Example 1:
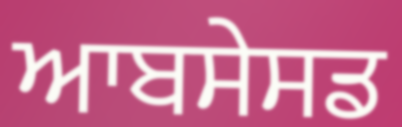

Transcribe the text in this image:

ਆਬਸੇਸਡ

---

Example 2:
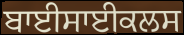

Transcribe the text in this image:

ਬਾਈਸਾਈਕਲਸ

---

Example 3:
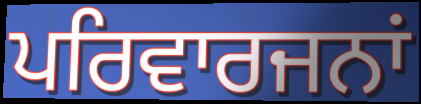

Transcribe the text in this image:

ਪਰਿਵਾਰਜਨਾਂ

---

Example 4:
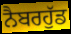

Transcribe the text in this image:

ਨੈਬਰਹੁੱਡ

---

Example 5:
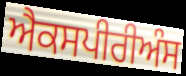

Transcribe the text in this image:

ਐਕਸਪੀਰੀਅੰਸ